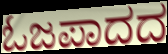
ಓಜಪಾದದ